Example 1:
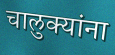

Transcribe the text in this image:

चालुक्यांना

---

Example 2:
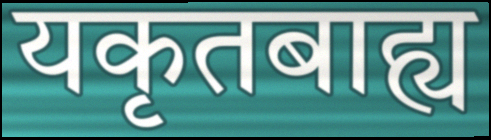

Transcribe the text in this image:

यकृतबाह्य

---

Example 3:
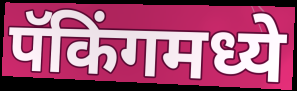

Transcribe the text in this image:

पॅकिंगमध्ये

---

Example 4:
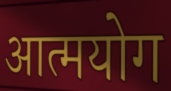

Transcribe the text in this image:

आत्मयोग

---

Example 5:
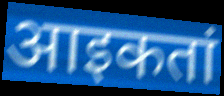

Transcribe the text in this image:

आइकतां